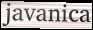
javanica